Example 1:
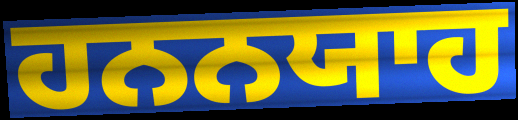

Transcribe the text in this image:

ਹਨਨਯਾਹ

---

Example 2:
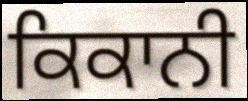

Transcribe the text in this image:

ਕਿਕਾਨੀ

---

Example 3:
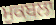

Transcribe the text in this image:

ਮੁਕਬਲਾ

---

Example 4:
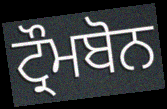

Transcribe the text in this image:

ਟ੍ਰੌਮਬੋਨ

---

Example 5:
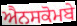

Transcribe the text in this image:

ਐਨਸਕੋਮਬੇ